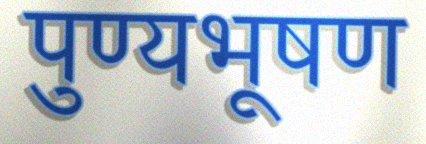
पुण्यभूषण